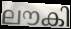
ലൗകി